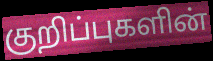
குறிப்புகளின்